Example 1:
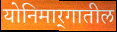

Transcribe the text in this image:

योनिमार्गातील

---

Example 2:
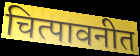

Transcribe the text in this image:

चित्पावनीत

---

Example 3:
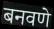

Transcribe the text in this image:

बनवणे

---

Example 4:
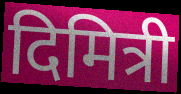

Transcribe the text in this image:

दिमित्री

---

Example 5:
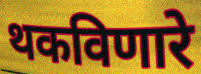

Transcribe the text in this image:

थकविणारे